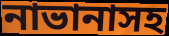
নাভানাসহ